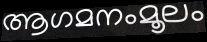
ആഗമനംമൂലം